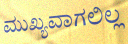
ಮುಖ್ಯವಾಗಲಿಲ್ಲ